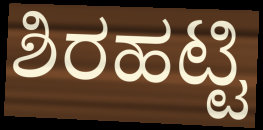
ಶಿರಹಟ್ಟಿ